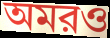
অমরও